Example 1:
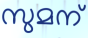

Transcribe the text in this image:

സുമന്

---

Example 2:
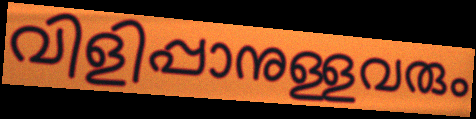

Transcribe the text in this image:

വിളിപ്പാനുള്ളവരും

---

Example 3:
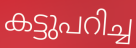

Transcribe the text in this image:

കട്ടുപറിച്ച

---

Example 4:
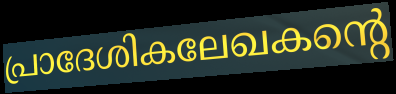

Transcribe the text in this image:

പ്രാദേശികലേഖകന്റെ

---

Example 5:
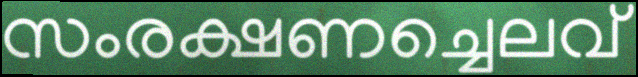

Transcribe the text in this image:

സംരക്ഷണച്ചെലവ്